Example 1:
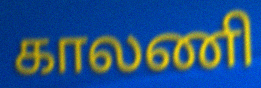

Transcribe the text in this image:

காலணி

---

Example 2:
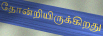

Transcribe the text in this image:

தோன்றியிருக்கிறது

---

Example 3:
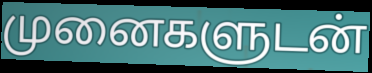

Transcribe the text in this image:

முனைகளுடன்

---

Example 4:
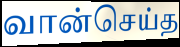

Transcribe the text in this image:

வான்செய்த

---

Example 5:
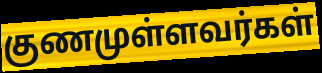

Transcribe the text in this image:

குணமுள்ளவர்கள்